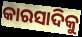
କାରସାଦିକୁ